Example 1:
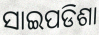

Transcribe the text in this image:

ସାଇପଡିଶା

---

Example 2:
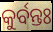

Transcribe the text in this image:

କୁର୍ବନ୍ତଃ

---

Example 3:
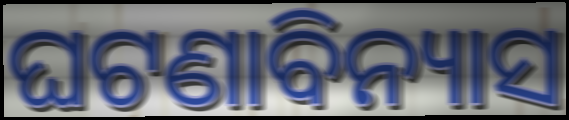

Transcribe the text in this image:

ଘଟଣାବିନ୍ୟାସ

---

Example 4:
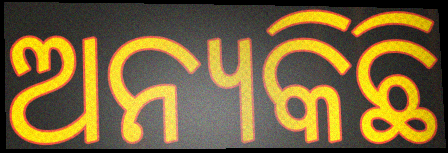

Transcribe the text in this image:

ଅନ୍ୟକିଛି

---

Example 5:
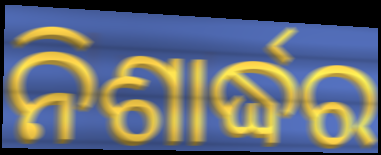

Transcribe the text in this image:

ନିଶାର୍ଦ୍ଧର